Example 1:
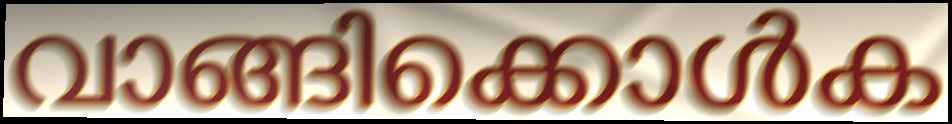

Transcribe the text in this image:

വാങ്ങിക്കൊൾക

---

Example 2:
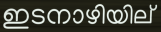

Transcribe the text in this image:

ഇടനാഴിയില്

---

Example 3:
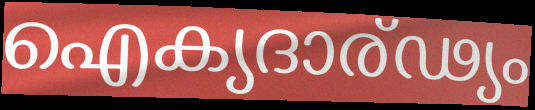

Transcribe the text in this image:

ഐക്യദാര്ഢ്യം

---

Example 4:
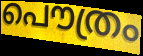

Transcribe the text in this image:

പൌത്രം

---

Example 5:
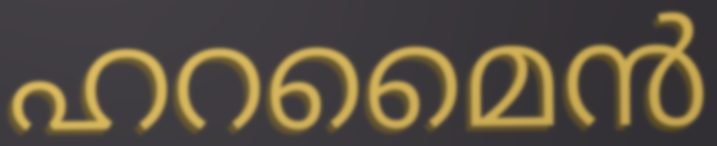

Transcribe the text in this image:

ഹറമൈൻ